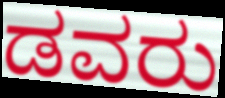
ಡವರು